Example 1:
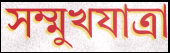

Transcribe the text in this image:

সম্মুখযাত্রা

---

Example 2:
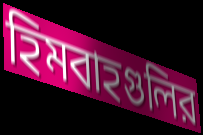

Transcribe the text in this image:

হিমবাহগুলির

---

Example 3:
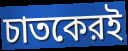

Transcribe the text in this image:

চাতকেরই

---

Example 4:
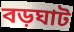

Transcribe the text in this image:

বড়ঘাট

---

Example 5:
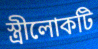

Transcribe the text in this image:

স্ত্রীলোকটি